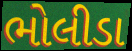
ભોલીડા